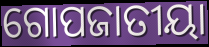
ଗୋପଜାତୀୟା